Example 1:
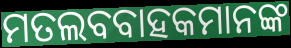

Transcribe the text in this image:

ମତଲବବାହକମାନଙ୍କ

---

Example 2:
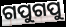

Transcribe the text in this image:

ଗପୁଗପୁ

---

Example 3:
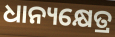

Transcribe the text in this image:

ଧାନ୍ୟକ୍ଷେତ୍ର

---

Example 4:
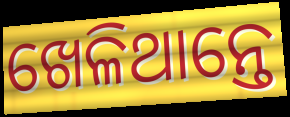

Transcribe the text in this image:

ଖେଳିଥାନ୍ତେ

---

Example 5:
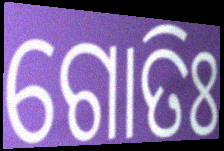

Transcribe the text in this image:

ଗୋତିଃ